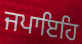
ਜਪਾਇਹਿ